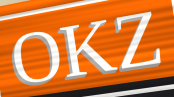
OKZ